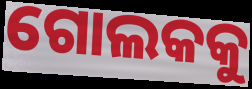
ଗୋଲକକୁ